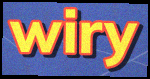
wiry